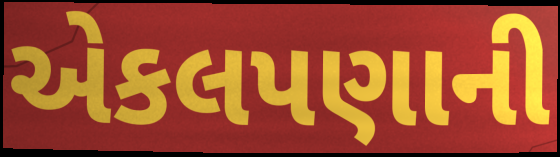
એકલપણાની